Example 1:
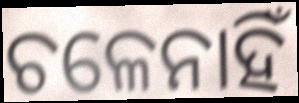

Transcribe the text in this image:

ଚଳେନାହିଁ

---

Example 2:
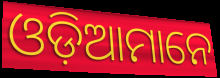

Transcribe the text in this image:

ଓଡ଼ିଆମାନେ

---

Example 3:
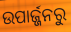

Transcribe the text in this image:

ଉପାର୍ଜ୍ଜନରୁ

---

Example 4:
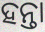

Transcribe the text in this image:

ହନ୍ତା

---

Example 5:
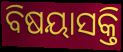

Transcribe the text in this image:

ବିଷୟାସକ୍ତି